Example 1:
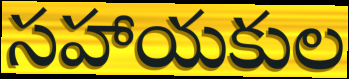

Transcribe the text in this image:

సహాయకుల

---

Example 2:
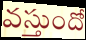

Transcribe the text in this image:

వస్తుందో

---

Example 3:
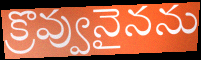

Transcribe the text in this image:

క్రొవ్వునైనను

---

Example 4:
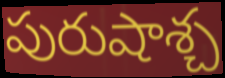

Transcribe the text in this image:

పురుషాశ్చ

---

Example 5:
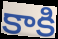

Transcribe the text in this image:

కాకి